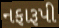
નફારૂપી